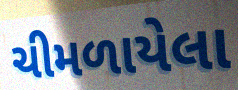
ચીમળાયેલા